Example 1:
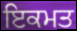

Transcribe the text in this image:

ਇਕਮਤ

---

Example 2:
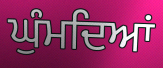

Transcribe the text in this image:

ਘੁੰਮਦਿਆਂ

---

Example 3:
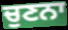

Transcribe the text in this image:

ਚੁਣਨਾ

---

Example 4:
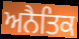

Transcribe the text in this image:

ਅਨੈਤਿਕ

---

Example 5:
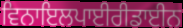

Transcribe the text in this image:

ਵਿਨਾਇਲਪਾਈਰੀਡਾਈਨ